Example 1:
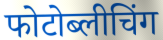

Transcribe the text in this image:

फोटोब्लीचिंग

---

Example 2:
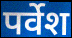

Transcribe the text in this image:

पर्वेश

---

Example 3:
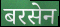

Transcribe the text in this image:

बरसेन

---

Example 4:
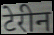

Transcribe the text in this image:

टेरीन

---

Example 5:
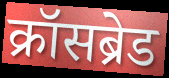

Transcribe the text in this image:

क्रॉसब्रेड